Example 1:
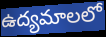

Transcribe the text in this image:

ఉద్యమాలలో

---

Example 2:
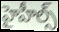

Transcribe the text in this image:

హైహీల్స్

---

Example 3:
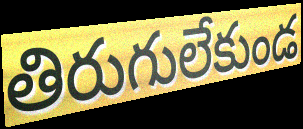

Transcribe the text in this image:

తిరుగులేకుండ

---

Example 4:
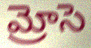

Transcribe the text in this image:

మ్రోసె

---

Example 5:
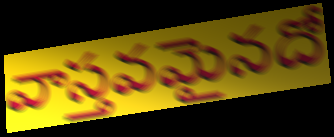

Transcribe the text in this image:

వాస్తవమైనదో